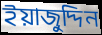
ইয়াজুদ্দিন